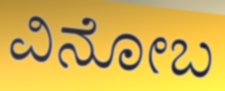
ವಿನೋಬ